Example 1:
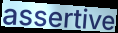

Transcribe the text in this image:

assertive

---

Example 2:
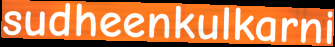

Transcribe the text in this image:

sudheenkulkarni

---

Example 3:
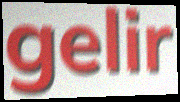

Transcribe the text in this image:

gelir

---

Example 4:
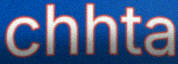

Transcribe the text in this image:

chhta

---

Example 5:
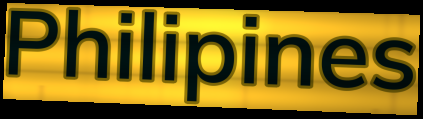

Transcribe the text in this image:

Philipines